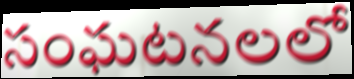
సంఘటనలలో